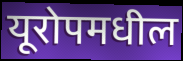
यूरोपमधील